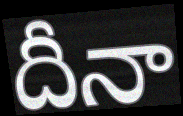
దీనా